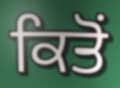
ਕਿਤੋਂ